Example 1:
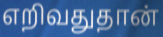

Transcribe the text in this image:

எறிவதுதான்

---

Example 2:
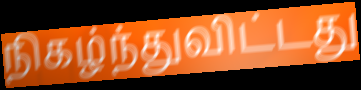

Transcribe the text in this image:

நிகழ்ந்துவிட்டது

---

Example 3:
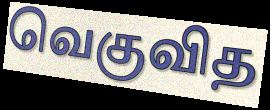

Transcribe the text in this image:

வெகுவித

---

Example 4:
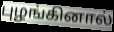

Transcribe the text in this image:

புழங்கினால்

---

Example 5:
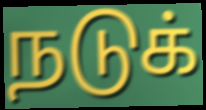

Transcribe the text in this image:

நடுக்